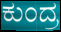
ಕುಂದ್ರ